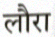
लौरा